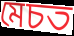
মেচত